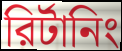
রির্টানিং